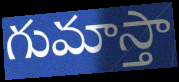
గుమాస్తా